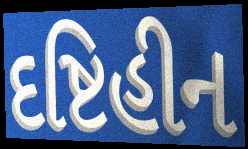
દષ્ટિહીન